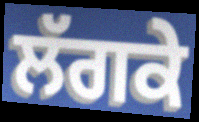
ਲੱਗਕੇ